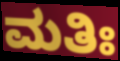
ಮತಿಃ